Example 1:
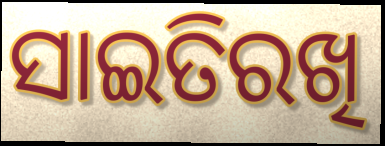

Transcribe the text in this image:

ସାଇତିରଖି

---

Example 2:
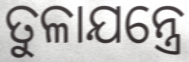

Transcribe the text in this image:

ତୁଳାଯନ୍ତ୍ରେ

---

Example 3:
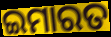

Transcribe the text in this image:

ଇମାରତ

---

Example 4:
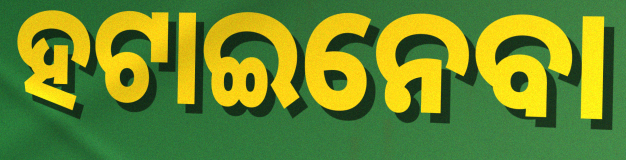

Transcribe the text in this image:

ହଟାଇନେବା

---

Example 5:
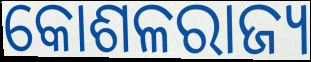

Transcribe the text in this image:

କୋଶଳରାଜ୍ୟ